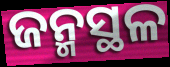
ଜନ୍ମସ୍ଥଳ